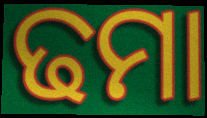
ଢମା